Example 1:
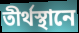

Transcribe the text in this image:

তীর্থস্থানে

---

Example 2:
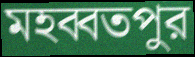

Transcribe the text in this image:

মহব্বতপুর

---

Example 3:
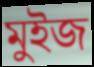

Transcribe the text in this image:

মুইজ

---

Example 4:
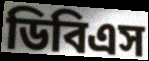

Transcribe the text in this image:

ডিবিএস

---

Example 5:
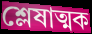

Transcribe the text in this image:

শ্লেষাত্মক